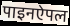
पाइनऐपल